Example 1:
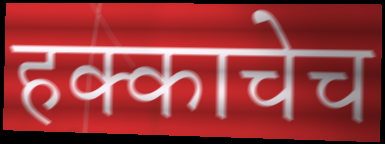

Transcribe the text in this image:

हक्काचेच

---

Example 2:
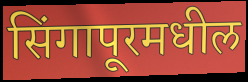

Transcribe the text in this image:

सिंगापूरमधील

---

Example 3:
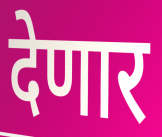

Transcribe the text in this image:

देणार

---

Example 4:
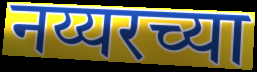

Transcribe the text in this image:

नय्यरच्या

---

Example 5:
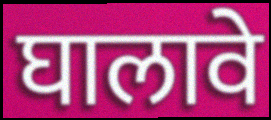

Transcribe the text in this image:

घालावे